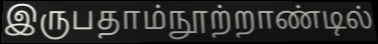
இருபதாம்நூற்றாண்டில்